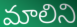
మాలిని